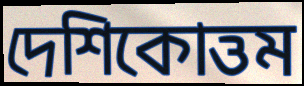
দেশিকোত্তম